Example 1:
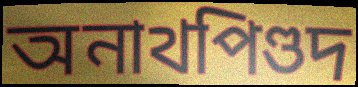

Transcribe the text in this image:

অনাথপিণ্ডদ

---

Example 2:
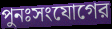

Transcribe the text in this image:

পুনঃসংযোগের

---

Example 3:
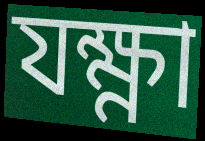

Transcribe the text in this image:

যক্ষ্ণা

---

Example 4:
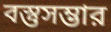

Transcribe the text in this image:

বস্তুসম্ভার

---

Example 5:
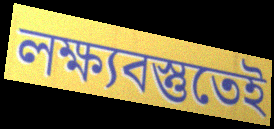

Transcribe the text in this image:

লক্ষ্যবস্তুতেই